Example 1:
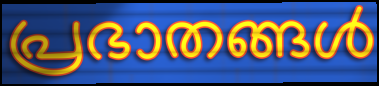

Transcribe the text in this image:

പ്രഭാതങ്ങൾ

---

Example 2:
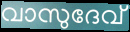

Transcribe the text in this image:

വാസുദേവ്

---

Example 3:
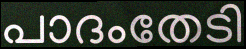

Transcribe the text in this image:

പാദംതേടി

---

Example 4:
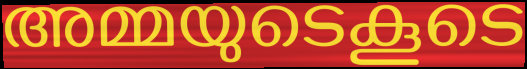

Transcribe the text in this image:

അമ്മയുടെകൂടെ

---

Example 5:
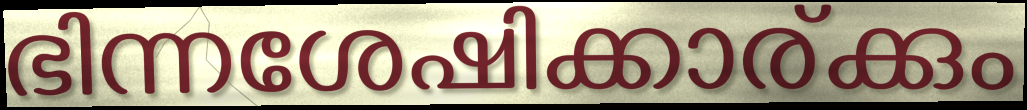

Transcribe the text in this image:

ഭിന്നശേഷിക്കാര്ക്കും